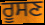
ਰੂਸਣ